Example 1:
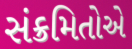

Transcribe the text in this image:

સંક્રમિતોએ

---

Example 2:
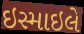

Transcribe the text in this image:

ઇસ્માઇલે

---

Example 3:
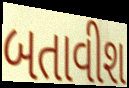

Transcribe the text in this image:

બતાવીશ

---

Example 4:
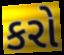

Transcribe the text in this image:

કરો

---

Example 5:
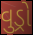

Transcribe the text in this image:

વુડ્રો